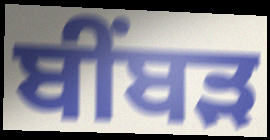
ਬੀੰਬੜ